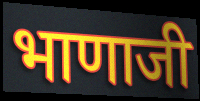
भाणाजी